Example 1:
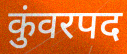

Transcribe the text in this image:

कुंवरपद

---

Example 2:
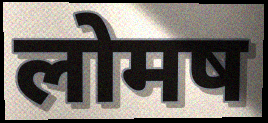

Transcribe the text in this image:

लोमष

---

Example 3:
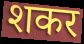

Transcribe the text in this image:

शकर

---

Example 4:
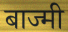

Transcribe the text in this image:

बाज्मी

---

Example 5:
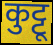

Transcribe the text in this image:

कुट्टू